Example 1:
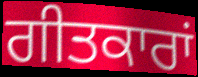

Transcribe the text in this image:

ਗੀਤਕਾਰਾਂ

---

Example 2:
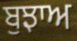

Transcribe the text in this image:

ਬੁਝਾਅ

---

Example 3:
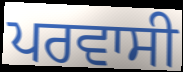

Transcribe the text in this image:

ਪਰਵਾਸੀ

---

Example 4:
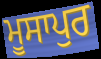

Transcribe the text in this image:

ਮੂਸਾਪੁਰ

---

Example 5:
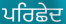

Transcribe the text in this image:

ਪਰਿਛੇਦ